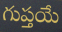
గుప్తయే